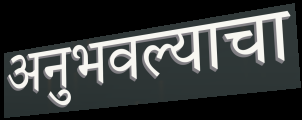
अनुभवल्याचा